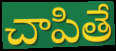
చాపితే